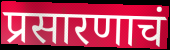
प्रसारणाचं